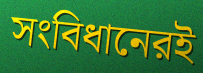
সংবিধানেরই